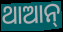
ଥାଆନ୍